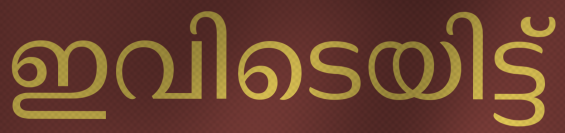
ഇവിടെയിട്ട്